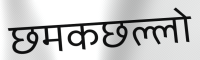
छमकछल्लो